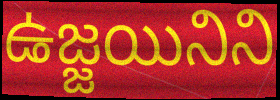
ఉజ్జయినిని